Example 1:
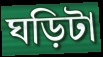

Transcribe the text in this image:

ঘড়িটা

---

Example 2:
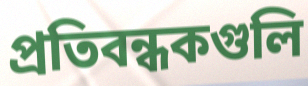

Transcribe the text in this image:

প্রতিবন্ধকগুলি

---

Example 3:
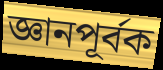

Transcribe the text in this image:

জ্ঞানপূর্বক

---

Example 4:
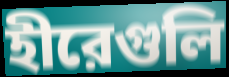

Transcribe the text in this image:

হীরেগুলি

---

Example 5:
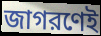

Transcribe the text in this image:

জাগরণেই